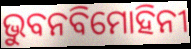
ଭୁବନବିମୋହିନୀ